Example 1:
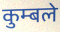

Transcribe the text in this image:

कुम्बले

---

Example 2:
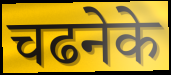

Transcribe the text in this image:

चढनेके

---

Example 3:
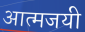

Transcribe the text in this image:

आत्मजयी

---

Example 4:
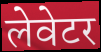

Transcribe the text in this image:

लेवेटर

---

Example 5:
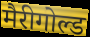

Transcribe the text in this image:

मैरीगोल्ड